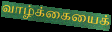
வாழ்க்கையைக்